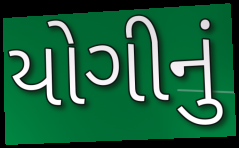
યોગીનું